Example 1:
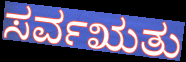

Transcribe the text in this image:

ಸರ್ವಋತು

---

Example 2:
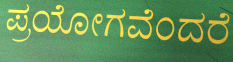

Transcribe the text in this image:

ಪ್ರಯೋಗವೆಂದರೆ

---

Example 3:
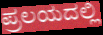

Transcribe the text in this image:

ಪ್ರಲಯದಲ್ಲಿ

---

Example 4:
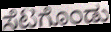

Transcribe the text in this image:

ಸೆಟಗೊಂಡು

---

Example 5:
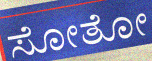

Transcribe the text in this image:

ಸೋತೋ